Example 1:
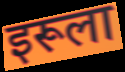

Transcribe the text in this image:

इरूला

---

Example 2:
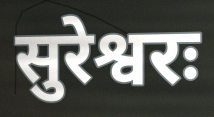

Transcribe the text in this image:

सुरेश्वरः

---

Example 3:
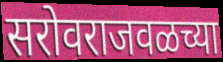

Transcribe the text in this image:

सरोवराजवळच्या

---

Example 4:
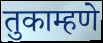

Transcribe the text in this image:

तुकाम्हणे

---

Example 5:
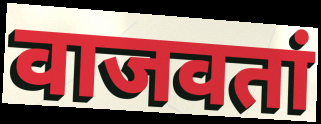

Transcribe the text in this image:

वाजवतां